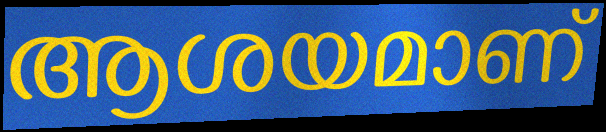
ആശയമാണ്